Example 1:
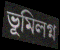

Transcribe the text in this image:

ভূমিলগ্ন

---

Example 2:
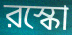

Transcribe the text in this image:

রস্কো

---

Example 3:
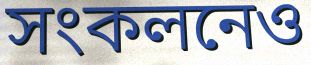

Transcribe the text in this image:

সংকলনেও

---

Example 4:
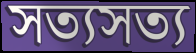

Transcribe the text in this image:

সত্যসত্য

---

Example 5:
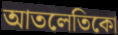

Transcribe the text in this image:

আতলেতিকো